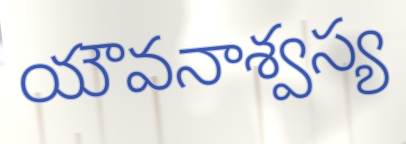
యౌవనాశ్వస్య